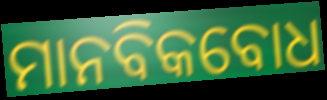
ମାନବିକବୋଧ